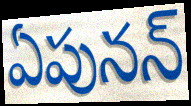
ఏపునన్